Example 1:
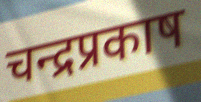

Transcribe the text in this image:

चन्द्रप्रकाष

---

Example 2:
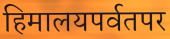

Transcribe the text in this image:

हिमालयपर्वतपर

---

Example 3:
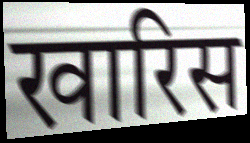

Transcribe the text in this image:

खारिस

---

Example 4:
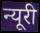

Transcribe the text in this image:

न्यूरी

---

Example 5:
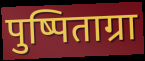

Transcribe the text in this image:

पुष्पिताग्रा